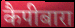
कैपीबारा